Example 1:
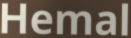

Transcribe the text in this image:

Hemal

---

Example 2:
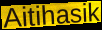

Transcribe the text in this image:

Aitihasik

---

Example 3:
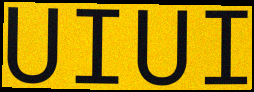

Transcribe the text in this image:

UIUI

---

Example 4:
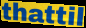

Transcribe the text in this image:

thattil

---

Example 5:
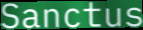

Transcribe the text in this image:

Sanctus